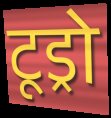
टूड्रो